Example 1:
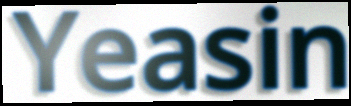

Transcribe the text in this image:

Yeasin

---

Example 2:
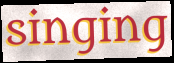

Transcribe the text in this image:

singing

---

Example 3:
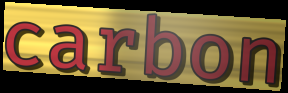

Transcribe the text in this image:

carbon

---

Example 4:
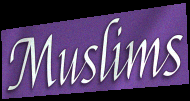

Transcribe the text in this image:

Muslims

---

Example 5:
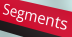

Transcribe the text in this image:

Segments